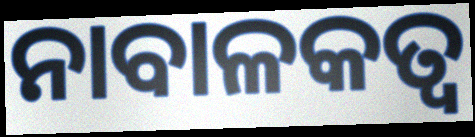
ନାବାଳକତ୍ଵ